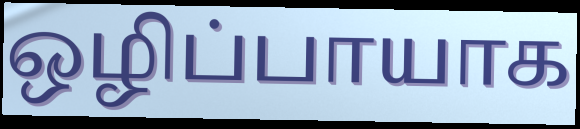
ஒழிப்பாயாக